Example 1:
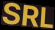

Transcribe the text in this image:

SRL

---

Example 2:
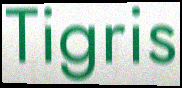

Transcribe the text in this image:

Tigris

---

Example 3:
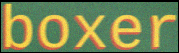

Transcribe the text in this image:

boxer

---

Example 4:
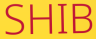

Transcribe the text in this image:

SHIB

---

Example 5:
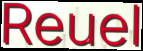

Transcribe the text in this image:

Reuel